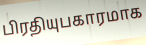
பிரதியுபகாரமாக